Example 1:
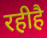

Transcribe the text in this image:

रहीहै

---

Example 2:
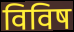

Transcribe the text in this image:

विविष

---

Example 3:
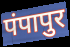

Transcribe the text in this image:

पंपापुर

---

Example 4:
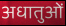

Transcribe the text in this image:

अधातुओं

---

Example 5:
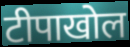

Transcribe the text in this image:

टीपाखोल